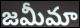
జమీమా